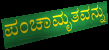
ಪಂಚಾಮೃತವನ್ನು